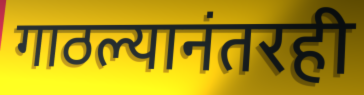
गाठल्यानंतरही